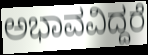
ಅಭಾವವಿದ್ದರೆ